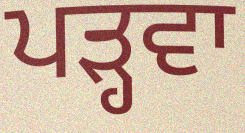
ਪੜ੍ਹਵਾ